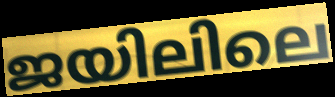
ജയിലിലെ